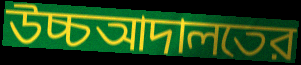
উচ্চআদালতের